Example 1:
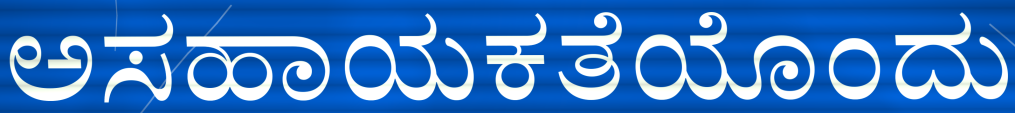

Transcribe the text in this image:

ಅಸಹಾಯಕತೆಯೊಂದು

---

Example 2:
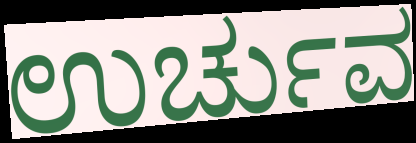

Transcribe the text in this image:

ಉರ್ಚುವ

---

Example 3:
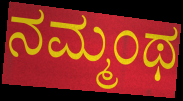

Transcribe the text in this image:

ನಮ್ಮಂಥ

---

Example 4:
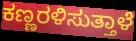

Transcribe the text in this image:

ಕಣ್ಣರಳಿಸುತ್ತಾಳೆ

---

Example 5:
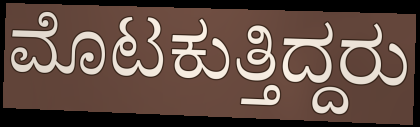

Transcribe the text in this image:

ಮೊಟಕುತ್ತಿದ್ದರು